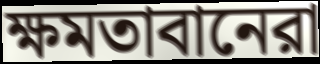
ক্ষমতাবানেরা